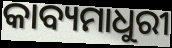
କାବ୍ୟମାଧୁରୀ